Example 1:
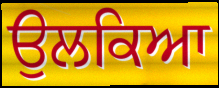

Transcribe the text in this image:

ਉਲਕਿਆ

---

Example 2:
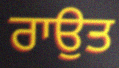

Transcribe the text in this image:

ਰਾਉਤ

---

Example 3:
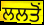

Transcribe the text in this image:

ਲਲਤੋਂ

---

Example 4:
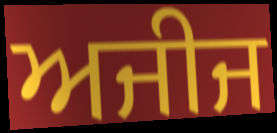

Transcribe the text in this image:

ਅਜੀਜ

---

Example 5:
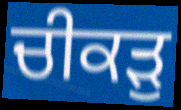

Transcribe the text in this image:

ਚੀਕੜੁ